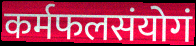
कर्मफलसंयोगं